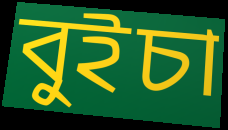
বুইচা